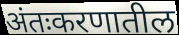
अंतःकरणातील